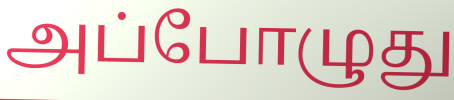
அப்போழுது